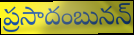
ప్రసాదంబునన్